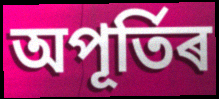
অপূৰ্তিৰ